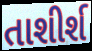
તાશીર્શ